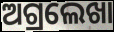
ଅଗ୍ରଲେଖା